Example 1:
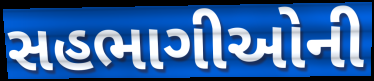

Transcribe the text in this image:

સહભાગીઓની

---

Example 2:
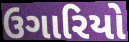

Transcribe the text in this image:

ઉગારિયો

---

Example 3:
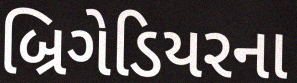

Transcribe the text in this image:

બ્રિગેડિયરના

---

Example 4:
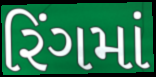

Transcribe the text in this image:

રિંગમાં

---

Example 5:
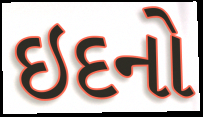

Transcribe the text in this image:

ઇદનો